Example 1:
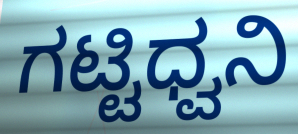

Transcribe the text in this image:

ಗಟ್ಟಿಧ್ವನಿ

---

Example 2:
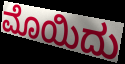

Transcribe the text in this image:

ಮೊಯಿದು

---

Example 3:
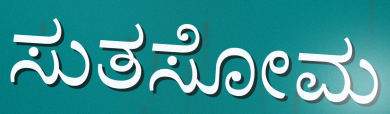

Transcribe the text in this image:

ಸುತಸೋಮ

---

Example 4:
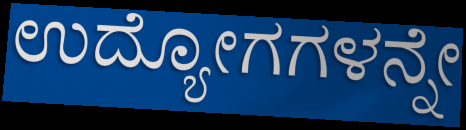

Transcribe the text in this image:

ಉದ್ಯೋಗಗಳನ್ನೇ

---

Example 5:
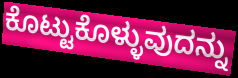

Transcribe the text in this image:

ಕೊಟ್ಟುಕೊಳ್ಳುವುದನ್ನು